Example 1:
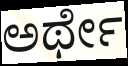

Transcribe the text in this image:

ಅರ್ಥೇ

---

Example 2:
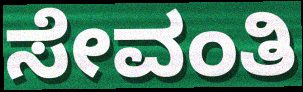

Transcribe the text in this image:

ಸೇವಂತಿ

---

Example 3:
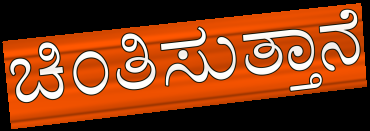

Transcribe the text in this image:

ಚಿಂತಿಸುತ್ತಾನೆ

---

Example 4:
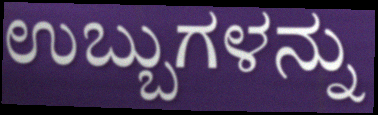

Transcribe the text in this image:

ಉಬ್ಬುಗಳನ್ನು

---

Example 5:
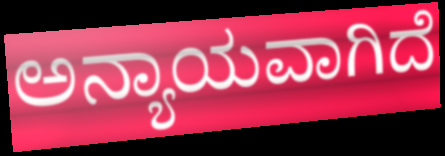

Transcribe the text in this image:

ಅನ್ಯಾಯವಾಗಿದೆ